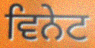
ਵਿਨੇਟ